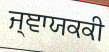
ਜ੍ਞਾਯਕਕੀ